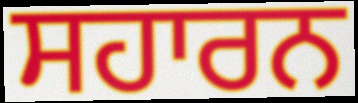
ਸਹਾਰਨ